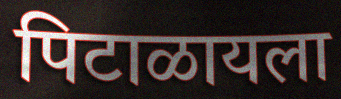
पिटाळायला